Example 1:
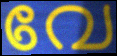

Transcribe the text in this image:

വേ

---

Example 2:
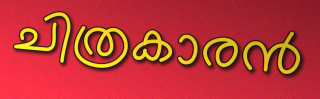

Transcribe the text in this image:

ചിത്രകാരൻ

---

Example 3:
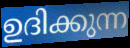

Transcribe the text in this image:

ഉദിക്കുന്ന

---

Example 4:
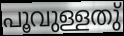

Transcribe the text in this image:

പൂവുള്ളതു്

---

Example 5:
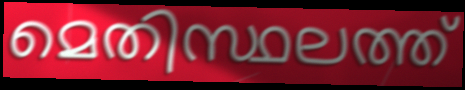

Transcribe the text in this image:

മെതിസ്ഥലത്ത്